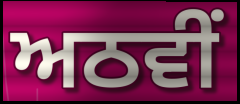
ਅਠਵੀਂ